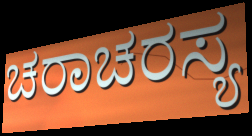
ಚರಾಚರಸ್ಯ